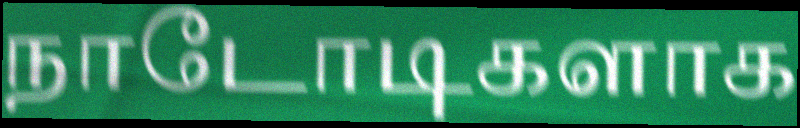
நாடோடிகளாக